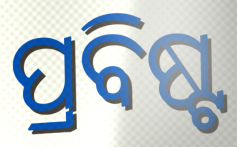
ପ୍ରବିଷ୍ଟ